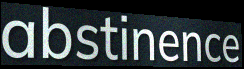
abstinence